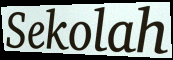
Sekolah